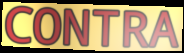
CONTRA